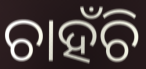
ଚାହଁଚି